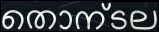
തൊന്ടല